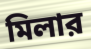
মিলার